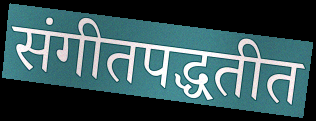
संगीतपद्धतीत